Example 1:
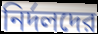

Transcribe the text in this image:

নির্দলদের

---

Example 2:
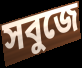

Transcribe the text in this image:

সবুজে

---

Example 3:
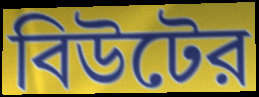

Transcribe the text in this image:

বিউটের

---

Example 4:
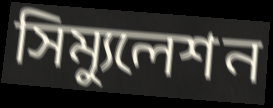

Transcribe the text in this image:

সিম্যুলেশন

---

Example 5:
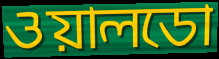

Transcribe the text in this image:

ওয়ালডো